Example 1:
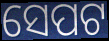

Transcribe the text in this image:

ସେପଟ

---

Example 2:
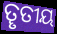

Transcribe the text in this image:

ତୄତୀୟ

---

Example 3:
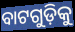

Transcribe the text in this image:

ବାଟଗୁଡ଼ିକୁ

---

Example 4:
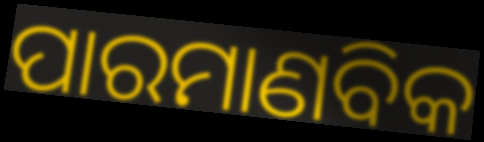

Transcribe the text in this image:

ପାରମାଣବିକ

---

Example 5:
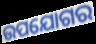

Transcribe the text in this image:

ଉପଯୋଗର